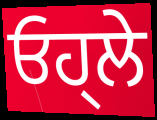
ਓਹ੍ਲੇ